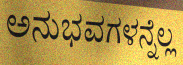
ಅನುಭವಗಳನ್ನೆಲ್ಲ